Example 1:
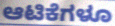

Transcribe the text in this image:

ಆಟಿಕೆಗಳೂ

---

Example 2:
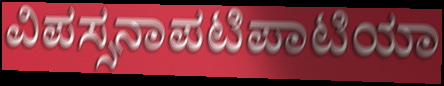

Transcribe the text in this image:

ವಿಪಸ್ಸನಾಪಟಿಪಾಟಿಯಾ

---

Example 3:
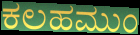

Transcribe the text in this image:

ಕಲಹಮುಂ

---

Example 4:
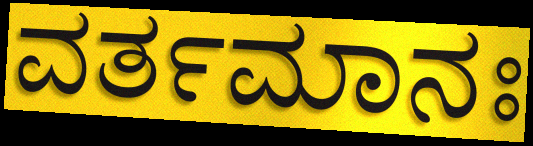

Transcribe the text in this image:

ವರ್ತಮಾನಃ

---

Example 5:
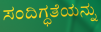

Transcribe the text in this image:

ಸಂದಿಗ್ಧತೆಯನ್ನು